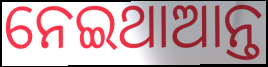
ନେଇଥାଆନ୍ତ